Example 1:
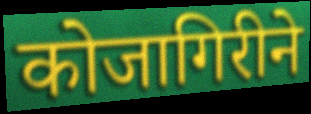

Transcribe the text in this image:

कोजागिरीने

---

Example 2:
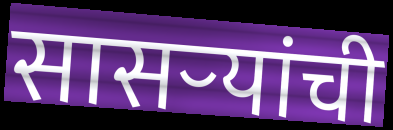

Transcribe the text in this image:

सासऱ्यांची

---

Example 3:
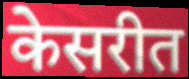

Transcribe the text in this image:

केसरीत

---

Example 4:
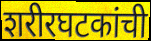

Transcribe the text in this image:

शरीरघटकांची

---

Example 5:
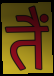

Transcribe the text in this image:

तैं